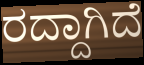
ರದ್ದಾಗಿದೆ